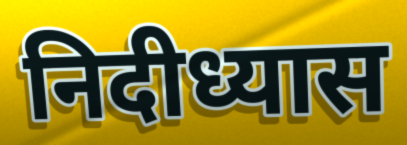
निदीध्यास